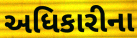
અધિકારીના